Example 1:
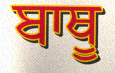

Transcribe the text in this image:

ਬਾਥੂ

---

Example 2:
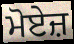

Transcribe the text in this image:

ਮੋਏਜ਼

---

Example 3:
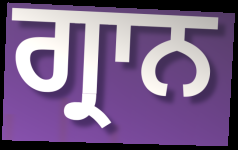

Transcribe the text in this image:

ਗ੍ਰਾਨ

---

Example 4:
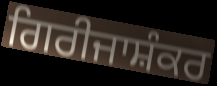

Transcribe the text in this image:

ਗਿਰੀਜਾਸ਼ੰਕਰ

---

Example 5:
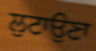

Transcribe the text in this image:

ਲੁਟਾਉਣਾ